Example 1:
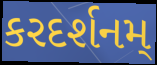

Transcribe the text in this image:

કરદર્શનમ્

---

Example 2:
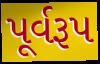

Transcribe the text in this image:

પૂર્વરૂપ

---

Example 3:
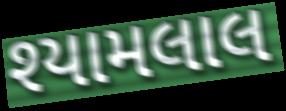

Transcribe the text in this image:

શ્યામલાલ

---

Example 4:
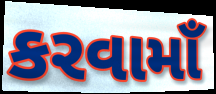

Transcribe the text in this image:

કરવામાઁ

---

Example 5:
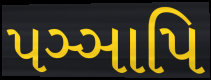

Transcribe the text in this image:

પઞ્ઞાપિ